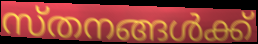
സ്തനങ്ങൾക്ക്